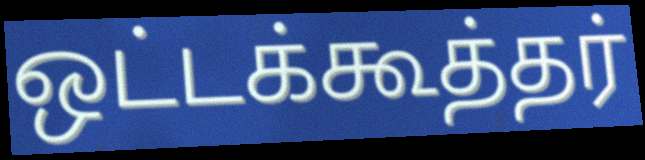
ஒட்டக்கூத்தர்